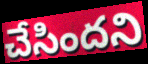
చేసిందని